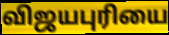
விஜயபுரியை